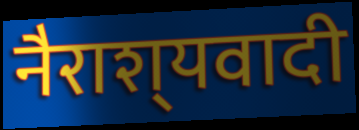
नैराश्यवादी